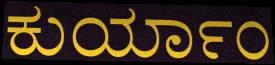
ಕುರ್ಯಾಂ